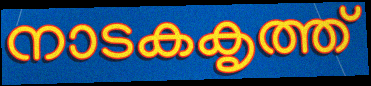
നാടകകൃത്ത്